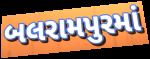
બલરામપુરમાં